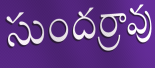
సుందర్రావు